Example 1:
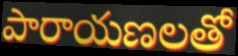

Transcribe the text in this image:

పారాయణలతో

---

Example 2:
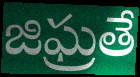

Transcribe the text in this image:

జిఘ్రతే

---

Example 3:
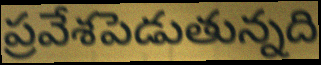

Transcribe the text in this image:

ప్రవేశపెడుతున్నది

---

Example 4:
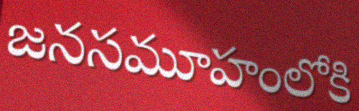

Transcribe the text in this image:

జనసమూహంలోకి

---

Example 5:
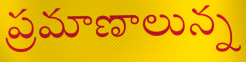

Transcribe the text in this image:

ప్రమాణాలున్న